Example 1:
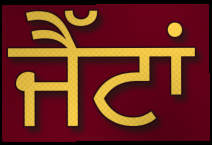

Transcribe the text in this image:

ਜੈੱਟਾਂ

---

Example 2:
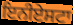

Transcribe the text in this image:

ਇਨੀਏਸਟਾ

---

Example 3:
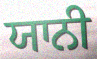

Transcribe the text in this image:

ਯਾਨੀ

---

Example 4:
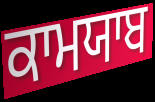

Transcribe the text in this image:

ਕਾਮਯਾਬ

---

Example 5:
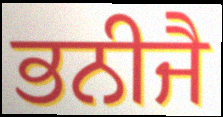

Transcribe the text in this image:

ਭਨੀਜੈ